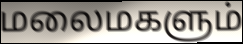
மலைமகளும்